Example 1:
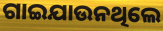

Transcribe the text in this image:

ଗାଇଯାଉନଥିଲେ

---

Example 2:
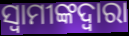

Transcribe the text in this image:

ସ୍ୱାମୀଙ୍କଦ୍ୱାରା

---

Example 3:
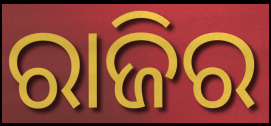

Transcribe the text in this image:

ରାଜିର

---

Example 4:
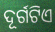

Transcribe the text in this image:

ଦୂର୍ଗଟିଏ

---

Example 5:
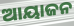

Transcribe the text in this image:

ଆୟାଜନ